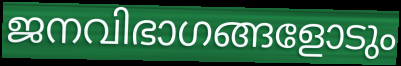
ജനവിഭാഗങ്ങളോടും